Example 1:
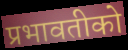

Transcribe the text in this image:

प्रभावतीको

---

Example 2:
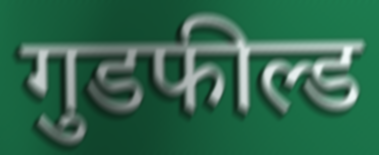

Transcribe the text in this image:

गुडफील्ड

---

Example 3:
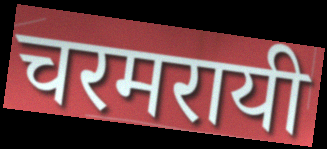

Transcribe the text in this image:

चरमरायी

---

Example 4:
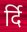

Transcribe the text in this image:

र्दि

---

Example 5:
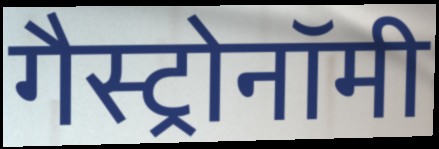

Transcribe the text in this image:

गैस्ट्रोनॉमी